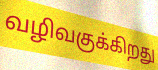
வழிவகுக்கிறது